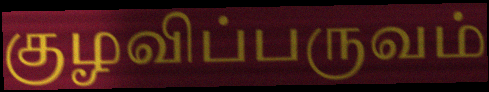
குழவிப்பருவம்